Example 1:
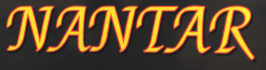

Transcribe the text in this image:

NANTAR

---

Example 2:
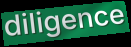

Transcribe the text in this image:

diligence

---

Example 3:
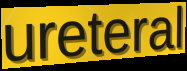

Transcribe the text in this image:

ureteral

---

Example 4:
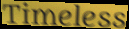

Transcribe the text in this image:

Timeless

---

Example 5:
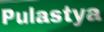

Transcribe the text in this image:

Pulastya